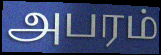
அபரம்